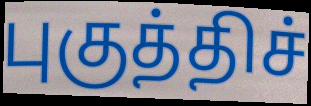
புகுத்திச்